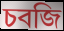
চবজি